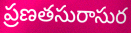
ప్రణతసురాసుర